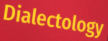
Dialectology